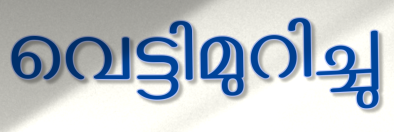
വെട്ടിമുറിച്ചു